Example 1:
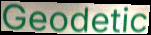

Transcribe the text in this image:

Geodetic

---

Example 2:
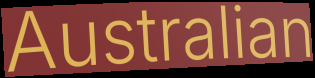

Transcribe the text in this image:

Australian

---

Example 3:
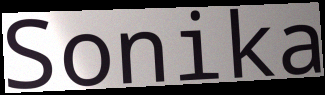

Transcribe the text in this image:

Sonika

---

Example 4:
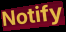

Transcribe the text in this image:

Notify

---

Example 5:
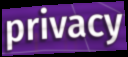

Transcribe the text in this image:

privacy